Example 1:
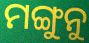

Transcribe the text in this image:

ମଙ୍ଗୁନୁ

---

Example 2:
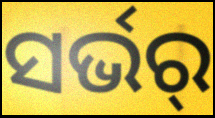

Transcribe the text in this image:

ସର୍ଭର୍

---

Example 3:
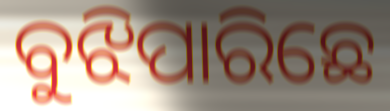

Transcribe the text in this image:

ବୁଝିପାରିଛେ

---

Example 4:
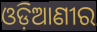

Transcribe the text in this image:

ଓଡ଼ିଆଣୀର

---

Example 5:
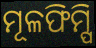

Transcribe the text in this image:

ମୂଳଫିମ୍ପି